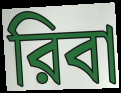
রিবা